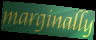
marginally